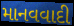
માનવવાદી